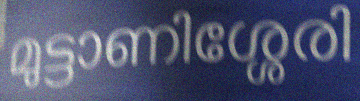
മുട്ടാണിശ്ശേരി